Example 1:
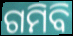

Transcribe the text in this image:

ଗମିବି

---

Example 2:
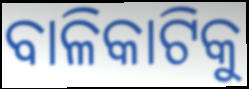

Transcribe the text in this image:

ବାଳିକାଟିକୁ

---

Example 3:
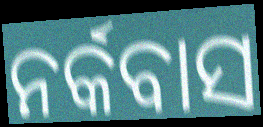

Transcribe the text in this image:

ନର୍କବାସ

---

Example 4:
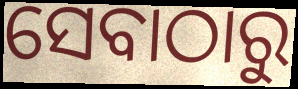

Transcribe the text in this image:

ସେବାଠାରୁ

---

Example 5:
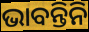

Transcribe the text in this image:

ଭାବନ୍ତିନି